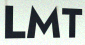
LMT